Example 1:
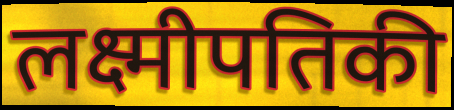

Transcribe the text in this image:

लक्ष्मीपतिकी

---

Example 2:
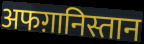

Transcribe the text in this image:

अफग़ानिस्तान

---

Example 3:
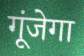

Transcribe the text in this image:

गूंजेगा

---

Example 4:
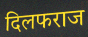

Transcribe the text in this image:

दिलफराज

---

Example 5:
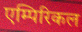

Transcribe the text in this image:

एम्पिरिकल